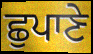
ਛੁਪਾਣੇ